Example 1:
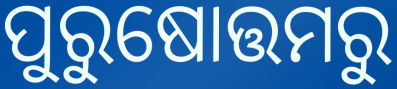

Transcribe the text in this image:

ପୁରୁଷୋତ୍ତମରୁ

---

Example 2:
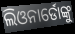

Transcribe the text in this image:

ଲିଓନାର୍ଡୋଙ୍କୁ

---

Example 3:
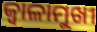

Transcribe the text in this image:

ଜ୍ୱାଳାମୁଖୀ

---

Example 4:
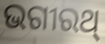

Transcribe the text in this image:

ଭଗୀରଥ୍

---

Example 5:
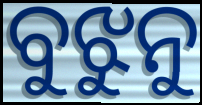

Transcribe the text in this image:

ବୁଝୁନୁ